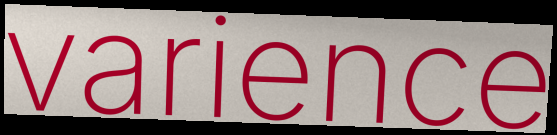
varience